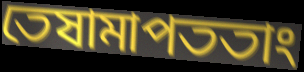
তেষামাপততাং